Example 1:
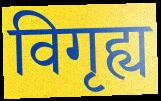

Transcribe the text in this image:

विगृह्य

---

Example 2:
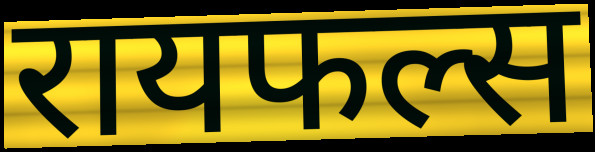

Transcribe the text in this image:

रायफल्स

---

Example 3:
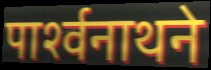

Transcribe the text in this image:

पार्श्वनाथने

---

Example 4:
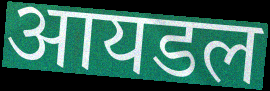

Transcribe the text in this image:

आयडल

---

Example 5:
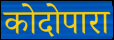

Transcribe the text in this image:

कोदोपारा